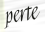
perte